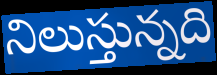
నిలుస్తున్నది